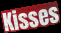
Kisses